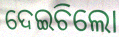
ଦେଇଚିଲୋ